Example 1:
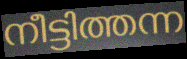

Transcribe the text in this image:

നീട്ടിത്തന്ന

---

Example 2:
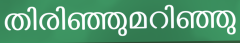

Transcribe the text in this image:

തിരിഞ്ഞുമറിഞ്ഞു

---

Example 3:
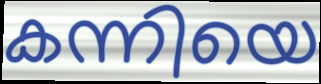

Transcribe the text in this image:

കന്നിയെ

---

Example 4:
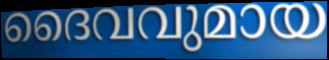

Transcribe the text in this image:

ദൈവവുമായ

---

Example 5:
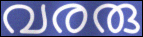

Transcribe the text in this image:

വരരു